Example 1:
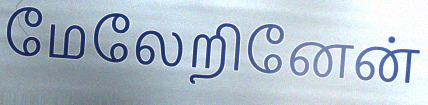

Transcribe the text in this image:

மேலேறினேன்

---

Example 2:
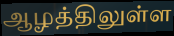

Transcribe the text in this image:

ஆழத்திலுள்ள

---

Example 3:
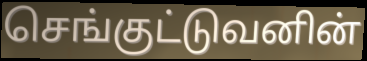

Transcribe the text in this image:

செங்குட்டுவனின்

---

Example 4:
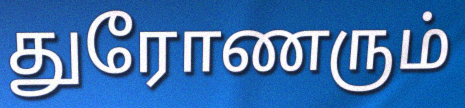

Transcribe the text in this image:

துரோணரும்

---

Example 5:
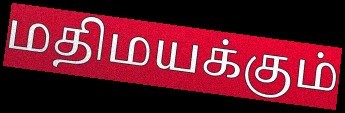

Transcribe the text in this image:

மதிமயக்கும்